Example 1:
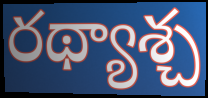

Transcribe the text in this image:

రథ్యాశ్చ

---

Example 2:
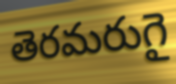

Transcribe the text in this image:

తెరమరుగై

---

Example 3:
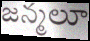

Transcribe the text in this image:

జన్మలూ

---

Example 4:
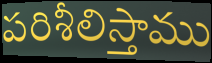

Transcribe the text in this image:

పరిశీలిస్తాము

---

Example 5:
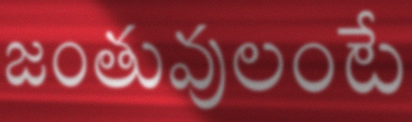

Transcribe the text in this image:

జంతువులంటే